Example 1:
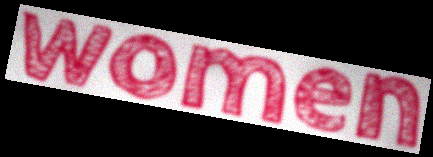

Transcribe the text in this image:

women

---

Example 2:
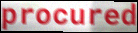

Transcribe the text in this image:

procured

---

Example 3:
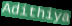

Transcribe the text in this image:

Adithiya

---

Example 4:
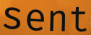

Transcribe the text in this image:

sent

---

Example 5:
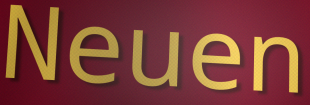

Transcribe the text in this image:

Neuen